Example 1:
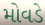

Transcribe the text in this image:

મોવડે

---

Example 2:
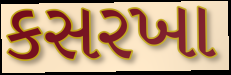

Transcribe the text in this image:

કસરખા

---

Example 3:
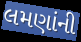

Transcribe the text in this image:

લમણાંની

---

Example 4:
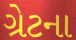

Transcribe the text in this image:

ગ્રેટના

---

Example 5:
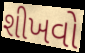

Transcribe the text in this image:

શીખવો